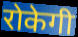
रोकेगी